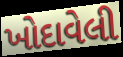
ખોદાવેલી